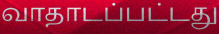
வாதாடப்பட்டது